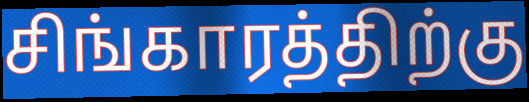
சிங்காரத்திற்கு